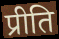
प्रीति